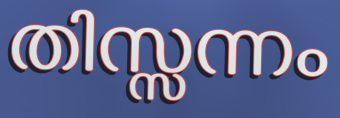
തിസ്സന്നം